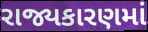
રાજ્યકારણમાં